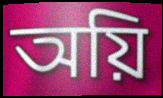
অয়ি